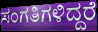
ಸಂಗತಿಗಳಿದ್ದರೆ